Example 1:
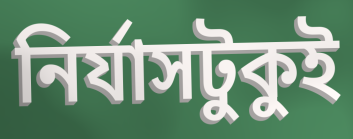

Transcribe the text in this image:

নির্যাসটুকুই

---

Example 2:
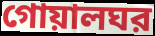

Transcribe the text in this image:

গোয়ালঘর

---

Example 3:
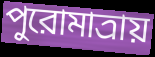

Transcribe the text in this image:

পুরোমাত্রায়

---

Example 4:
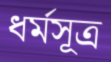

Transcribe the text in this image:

ধর্মসূত্র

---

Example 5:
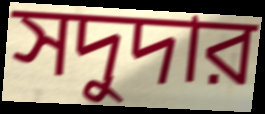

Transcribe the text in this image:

সদুদার